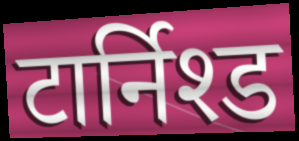
टार्निश्ड